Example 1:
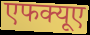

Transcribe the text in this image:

एफक्यूए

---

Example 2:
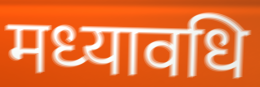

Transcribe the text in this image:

मध्‍यावधि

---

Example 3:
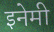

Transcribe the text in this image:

इनेमी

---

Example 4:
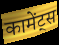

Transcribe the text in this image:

कामेंट्स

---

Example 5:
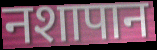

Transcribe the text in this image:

नशापान